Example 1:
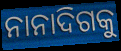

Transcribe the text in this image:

ନାନାଦିଗକୁ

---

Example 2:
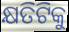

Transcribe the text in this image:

କ୍ଷତିଟିକୁ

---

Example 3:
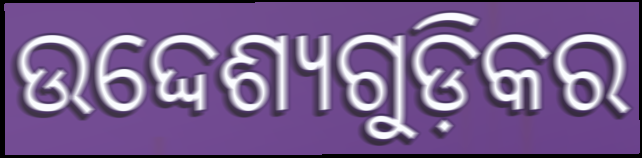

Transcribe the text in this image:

ଉଦ୍ଦେଶ୍ୟଗୁଡ଼ିକର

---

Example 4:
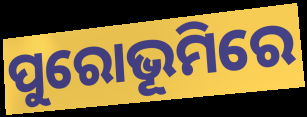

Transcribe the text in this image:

ପୁରୋଭୂମିରେ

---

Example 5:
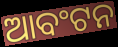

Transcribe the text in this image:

ଆବଂଟନ